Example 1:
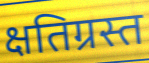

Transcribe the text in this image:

क्षतिग्रस्त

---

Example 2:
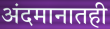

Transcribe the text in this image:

अंदमानातही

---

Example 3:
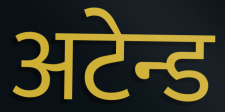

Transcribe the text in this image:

अटेन्ड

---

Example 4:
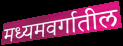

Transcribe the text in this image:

मध्यमवर्गातील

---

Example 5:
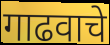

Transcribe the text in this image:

गाढवाचे